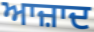
ਆਜ਼ਾਦ